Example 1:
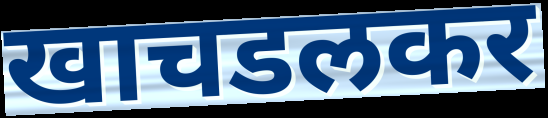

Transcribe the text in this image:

खाचडलकर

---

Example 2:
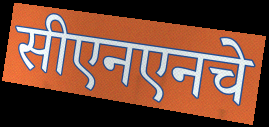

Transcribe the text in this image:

सीएनएनचे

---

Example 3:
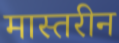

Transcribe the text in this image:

मास्तरीन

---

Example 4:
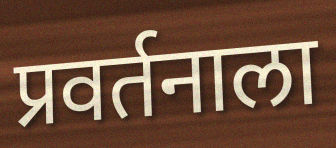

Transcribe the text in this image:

प्रवर्तनाला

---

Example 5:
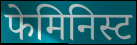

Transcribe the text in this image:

फेमिनिस्ट